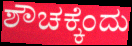
ಶೌಚಕ್ಕೆಂದು